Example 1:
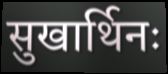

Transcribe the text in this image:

सुखार्थिनः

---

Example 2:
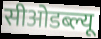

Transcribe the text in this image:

सीओडब्ल्यू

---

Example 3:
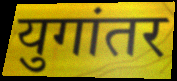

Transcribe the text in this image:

युगांतर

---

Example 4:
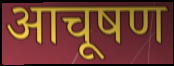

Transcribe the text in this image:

आचूषण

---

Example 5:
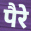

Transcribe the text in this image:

पैरे